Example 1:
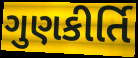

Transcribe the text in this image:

ગુણકીર્તિ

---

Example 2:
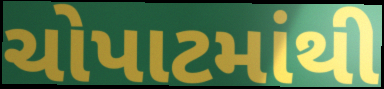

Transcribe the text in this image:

ચોપાટમાંથી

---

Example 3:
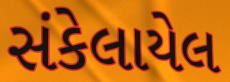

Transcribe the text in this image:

સંકેલાયેલ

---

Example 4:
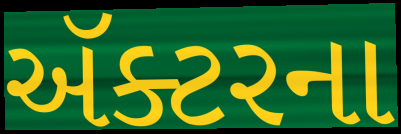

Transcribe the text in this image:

ઍક્ટરના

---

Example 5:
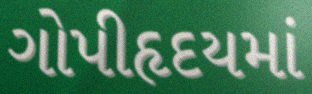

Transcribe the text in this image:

ગોપીહૃદયમાં